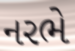
નરભે